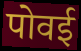
पोवई